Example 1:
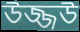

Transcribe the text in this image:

উজ্জউ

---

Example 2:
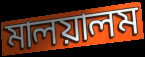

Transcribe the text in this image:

মালয়ালম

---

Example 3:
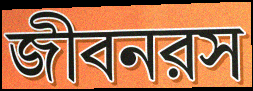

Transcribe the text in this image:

জীবনরস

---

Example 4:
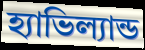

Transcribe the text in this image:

হ্যাভিল্যান্ড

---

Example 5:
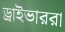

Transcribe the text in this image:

ড্রাইভাররা